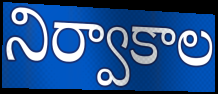
నిర్వాకాల